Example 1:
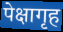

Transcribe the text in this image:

पेक्षागृह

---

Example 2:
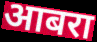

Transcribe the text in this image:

आबरा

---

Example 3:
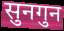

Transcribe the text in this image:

सुनगुन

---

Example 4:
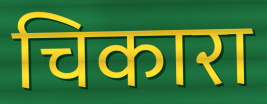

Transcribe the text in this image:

चिकारा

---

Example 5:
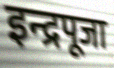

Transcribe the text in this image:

इन्द्रपूजा